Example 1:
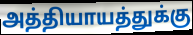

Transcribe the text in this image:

அத்தியாயத்துக்கு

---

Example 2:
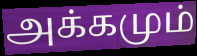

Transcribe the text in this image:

அக்கமும்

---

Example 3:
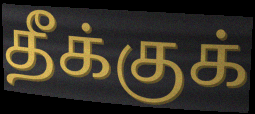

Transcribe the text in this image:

தீக்குக்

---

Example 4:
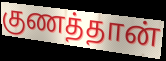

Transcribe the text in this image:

குணத்தான்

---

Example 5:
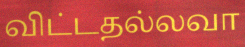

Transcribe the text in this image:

விட்டதல்லவா